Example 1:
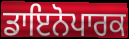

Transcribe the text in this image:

ਡਾਇਨੋਪਾਰਕ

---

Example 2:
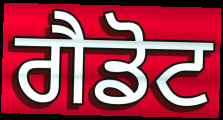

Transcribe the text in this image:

ਗੈਡੋਟ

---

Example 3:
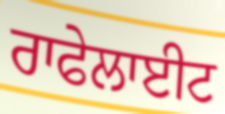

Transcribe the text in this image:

ਰਾਫੇਲਾਈਟ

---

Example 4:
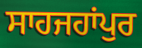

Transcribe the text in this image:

ਸਾਹਜਹਾਂਪੁਰ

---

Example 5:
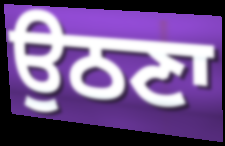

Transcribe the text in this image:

ਉਠਣਾ